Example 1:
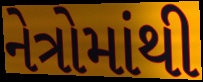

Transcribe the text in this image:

નેત્રોમાંથી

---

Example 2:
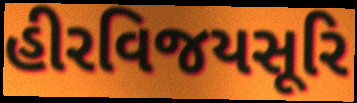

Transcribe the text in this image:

હીરવિજયસૂરિ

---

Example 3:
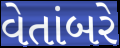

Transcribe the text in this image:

વેતાંબરે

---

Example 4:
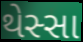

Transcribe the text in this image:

થેસ્સા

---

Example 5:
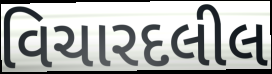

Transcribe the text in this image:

વિચારદલીલ